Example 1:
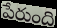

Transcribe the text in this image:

పేరుంది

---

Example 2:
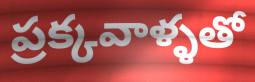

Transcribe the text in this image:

ప్రక్కవాళ్ళతో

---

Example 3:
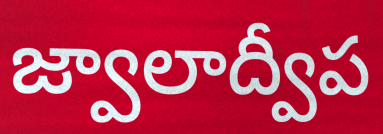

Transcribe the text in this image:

జ్వాలాద్వీప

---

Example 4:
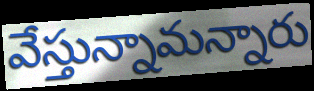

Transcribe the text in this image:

వేస్తున్నామన్నారు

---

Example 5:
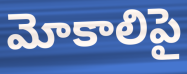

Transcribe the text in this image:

మోకాలిపై